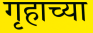
गृहाच्या